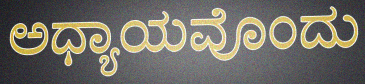
ಅಧ್ಯಾಯವೊಂದು